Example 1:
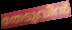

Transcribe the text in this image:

തേടുവിൻ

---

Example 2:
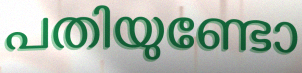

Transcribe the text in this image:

പതിയുണ്ടോ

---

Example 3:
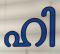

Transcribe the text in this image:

ഹി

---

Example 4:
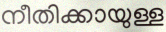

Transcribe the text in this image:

നീതിക്കായുള്ള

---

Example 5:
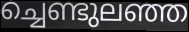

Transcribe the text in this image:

ച്ചെണ്ടുലഞ്ഞ